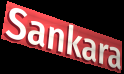
Sankara